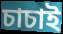
চাচাই